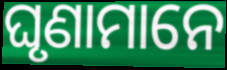
ଘୃଣାମାନେ